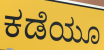
ಕಡೆಯೂ